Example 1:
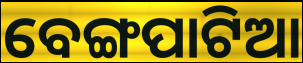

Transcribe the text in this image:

ବେଙ୍ଗପାଟିଆ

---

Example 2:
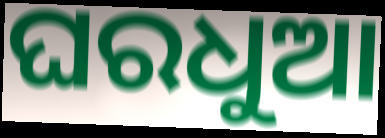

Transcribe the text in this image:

ଘରଧୁଆ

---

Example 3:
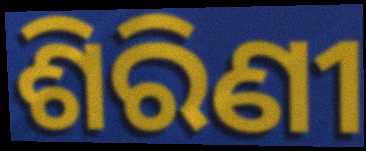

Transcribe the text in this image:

ଶିରିଣୀ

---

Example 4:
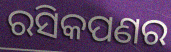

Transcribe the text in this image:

ରସିକପଣର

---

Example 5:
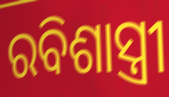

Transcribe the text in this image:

ରବିଶାସ୍ତ୍ରୀ